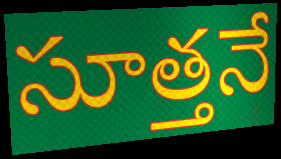
సూత్తనే